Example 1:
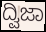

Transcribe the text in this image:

ದ್ವಿಜಾ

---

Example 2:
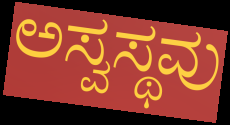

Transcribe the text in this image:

ಅಸ್ವಸ್ಥವು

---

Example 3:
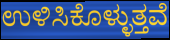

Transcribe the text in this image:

ಉಳಿಸಿಕೊಳ್ಳುತ್ತವೆ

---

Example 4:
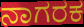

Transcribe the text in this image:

ನಾಗರಕ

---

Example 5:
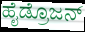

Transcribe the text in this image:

ಹೈಡ್ರೊಜನ್